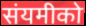
संयमीको